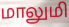
மாலுமி